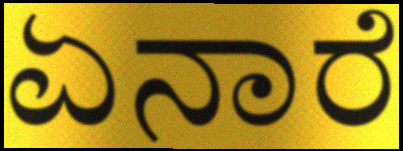
ಏನಾರೆ